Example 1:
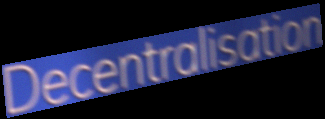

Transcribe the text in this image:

Decentralisation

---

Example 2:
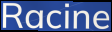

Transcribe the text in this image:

Racine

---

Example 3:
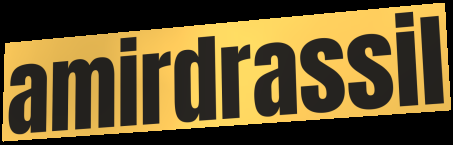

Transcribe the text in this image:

amirdrassil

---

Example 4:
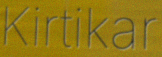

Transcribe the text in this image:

Kirtikar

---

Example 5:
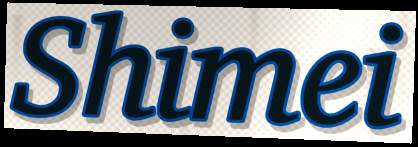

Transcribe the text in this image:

Shimei